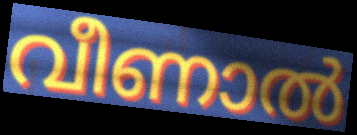
വീണാൽ